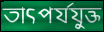
তাৎপর্যযুক্ত